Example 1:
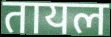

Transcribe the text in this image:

तायल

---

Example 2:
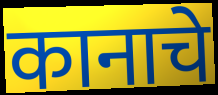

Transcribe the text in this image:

कानाचे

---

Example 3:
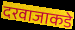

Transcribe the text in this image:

दरवाजाकडे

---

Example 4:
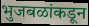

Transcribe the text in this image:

भुजबळांकडून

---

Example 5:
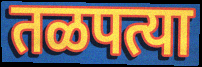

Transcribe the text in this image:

तळपत्या